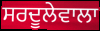
ਸਰਦੂਲੇਵਾਲਾ